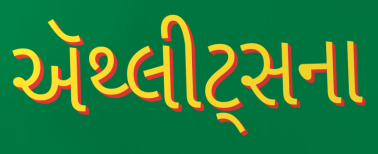
ઍથ્લીટ્સના